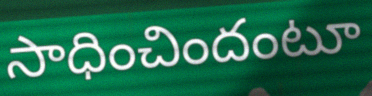
సాధించిందంటూ